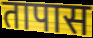
तापास